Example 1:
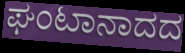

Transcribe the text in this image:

ಘಂಟಾನಾದದ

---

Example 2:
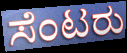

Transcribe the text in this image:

ಸೆಂಟರು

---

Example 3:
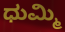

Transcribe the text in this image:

ಧುಮ್ಮಿ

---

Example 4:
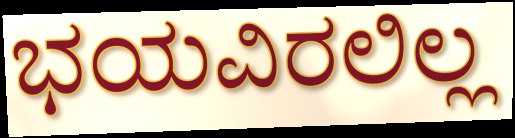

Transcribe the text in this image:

ಭಯವಿರಲಿಲ್ಲ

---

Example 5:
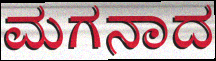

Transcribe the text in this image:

ಮಗನಾದ